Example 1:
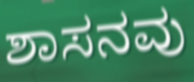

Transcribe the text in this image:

ಶಾಸನವು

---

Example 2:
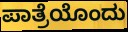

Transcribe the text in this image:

ಪಾತ್ರೆಯೊಂದು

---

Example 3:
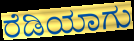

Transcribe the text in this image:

ರೆಡಿಯಾಗು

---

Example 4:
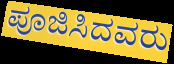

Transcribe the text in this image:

ಪೂಜಿಸಿದವರು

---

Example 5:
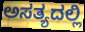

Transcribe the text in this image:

ಅಸತ್ಯದಲ್ಲಿ